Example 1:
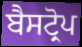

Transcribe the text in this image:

ਬੈਸਟ੍ਰੋਪ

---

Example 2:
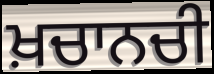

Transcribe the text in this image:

ਖ਼ਚਾਨਚੀ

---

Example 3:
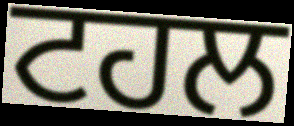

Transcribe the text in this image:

ਟਹਲ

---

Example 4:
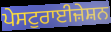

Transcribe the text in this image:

ਪੇਸਟੁਰਾਈਜ਼ੇਸ਼ਨ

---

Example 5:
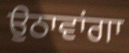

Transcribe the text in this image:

ਉਠਾਵਾਂਗਾ